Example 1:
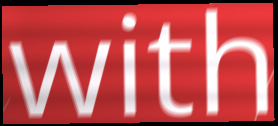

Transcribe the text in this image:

with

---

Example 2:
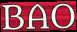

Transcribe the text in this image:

BAO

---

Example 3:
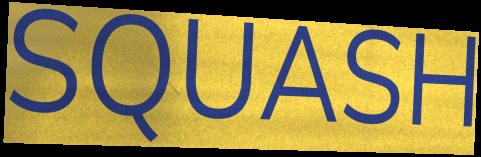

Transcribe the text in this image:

SQUASH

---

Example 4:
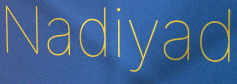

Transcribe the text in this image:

Nadiyad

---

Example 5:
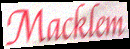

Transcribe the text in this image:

Macklem